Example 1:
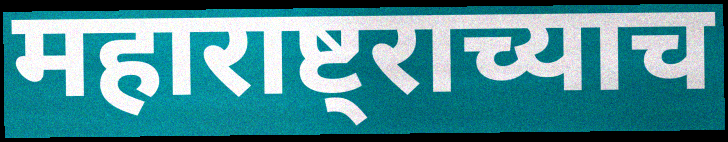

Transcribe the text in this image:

महाराष्ट्राच्याच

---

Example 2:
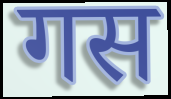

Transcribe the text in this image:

गस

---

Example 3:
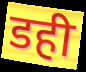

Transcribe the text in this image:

डही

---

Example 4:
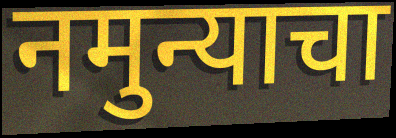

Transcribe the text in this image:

नमुन्याचा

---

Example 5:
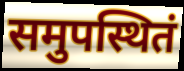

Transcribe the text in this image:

समुपस्थितं